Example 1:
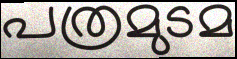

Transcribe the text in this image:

പത്രമുടമ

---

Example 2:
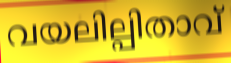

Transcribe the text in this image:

വയലില്പിതാവ്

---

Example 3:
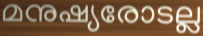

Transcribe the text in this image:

മനുഷ്യരോടല്ല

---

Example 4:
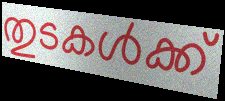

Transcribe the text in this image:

തുടകൾക്ക്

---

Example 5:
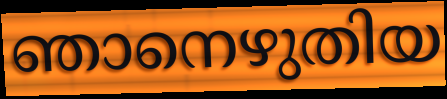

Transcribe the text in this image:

ഞാനെഴുതിയ